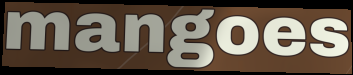
mangoes